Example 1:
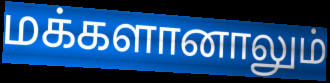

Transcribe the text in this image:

மக்களானாலும்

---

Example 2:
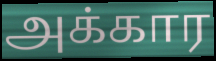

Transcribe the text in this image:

அக்கார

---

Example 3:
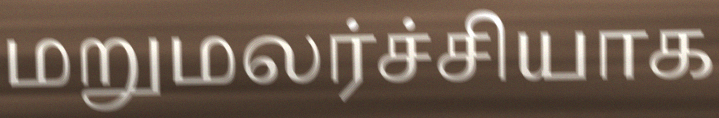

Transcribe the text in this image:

மறுமலர்ச்சியாக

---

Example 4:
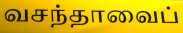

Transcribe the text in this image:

வசந்தாவைப்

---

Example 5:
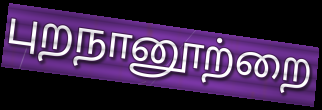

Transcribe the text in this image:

புறநானூற்றை